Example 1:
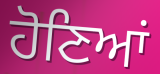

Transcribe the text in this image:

ਹੋਣਿਆਂ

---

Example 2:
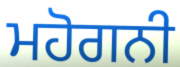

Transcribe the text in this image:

ਮਹੋਗਨੀ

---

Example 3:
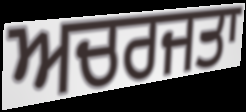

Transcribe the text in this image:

ਅਚਰਜਤਾ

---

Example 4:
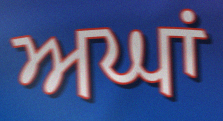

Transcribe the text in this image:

ਅਘਾਂ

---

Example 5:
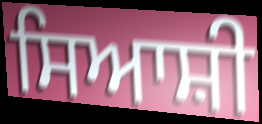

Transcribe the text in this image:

ਸਿਆਸ਼ੀ